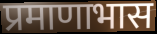
प्रमाणाभास